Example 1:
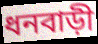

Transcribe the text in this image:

ধনবাড়ী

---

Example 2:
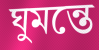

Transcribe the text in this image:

ঘুমন্তে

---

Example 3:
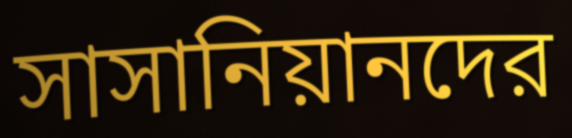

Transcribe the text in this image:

সাসানিয়ানদের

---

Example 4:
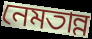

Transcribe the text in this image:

নেমতান্ন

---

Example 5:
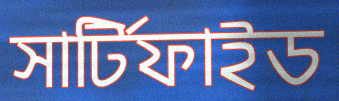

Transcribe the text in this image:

সার্টিফাইড